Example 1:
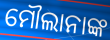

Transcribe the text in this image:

ମୌଲାନାଙ୍କ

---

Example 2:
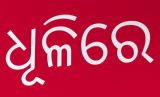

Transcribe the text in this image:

ଧୂଳିରେ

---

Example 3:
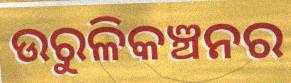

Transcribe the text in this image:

ଉରୁଳିକଞ୍ଚନର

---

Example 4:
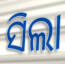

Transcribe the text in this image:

ସିଲା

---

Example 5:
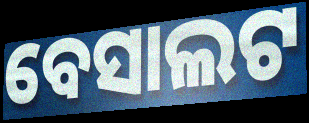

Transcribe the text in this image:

ବେସାଲଟ